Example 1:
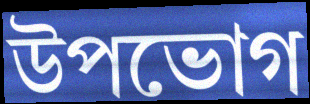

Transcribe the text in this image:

উপভোগ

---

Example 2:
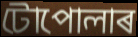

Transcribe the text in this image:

টোপোলাৰ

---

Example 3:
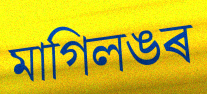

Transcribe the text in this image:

মাগিলঙৰ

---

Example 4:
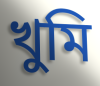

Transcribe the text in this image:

খুমি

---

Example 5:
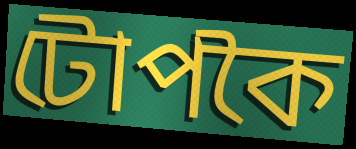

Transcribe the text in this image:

টোপকৈ